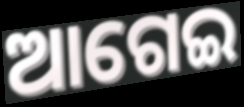
ଆଗେଇ